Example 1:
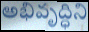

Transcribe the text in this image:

అభివృద్ధిని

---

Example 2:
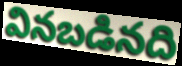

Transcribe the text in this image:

వినబడినది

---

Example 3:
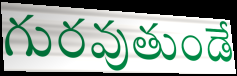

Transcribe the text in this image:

గురవుతుండే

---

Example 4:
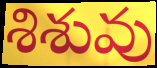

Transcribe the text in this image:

శిశువు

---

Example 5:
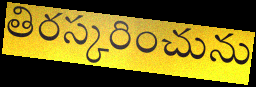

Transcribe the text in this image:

తిరస్కరించును